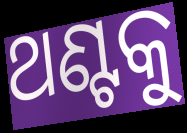
ଥଣ୍ଟକୁ